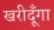
खरीदूँगा